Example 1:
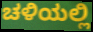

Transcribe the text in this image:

ಚಳಿಯಲ್ಲಿ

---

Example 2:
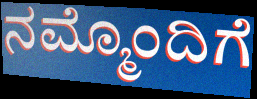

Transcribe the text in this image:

ನಮ್ಮೊಂದಿಗೆ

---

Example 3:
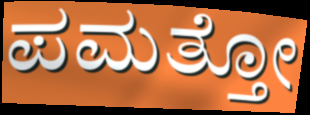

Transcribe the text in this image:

ಪಮತ್ತೋ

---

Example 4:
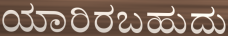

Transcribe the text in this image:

ಯಾರಿರಬಹುದು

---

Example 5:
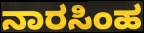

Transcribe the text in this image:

ನಾರಸಿಂಹ